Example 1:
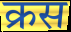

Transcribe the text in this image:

क्रस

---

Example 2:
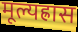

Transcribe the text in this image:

मूल्यह्रास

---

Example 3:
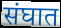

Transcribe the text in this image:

संघात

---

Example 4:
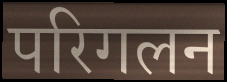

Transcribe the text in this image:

परिगलन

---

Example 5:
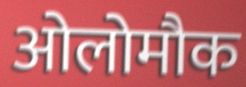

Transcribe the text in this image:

ओलोमौक